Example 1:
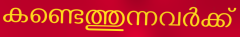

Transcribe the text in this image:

കണ്ടെത്തുന്നവർക്ക്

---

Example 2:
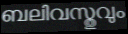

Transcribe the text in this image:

ബലിവസ്തുവും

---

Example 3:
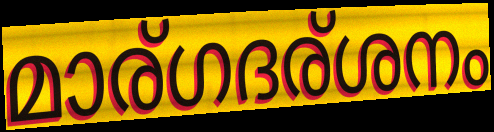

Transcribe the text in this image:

മാര്ഗദര്ശനം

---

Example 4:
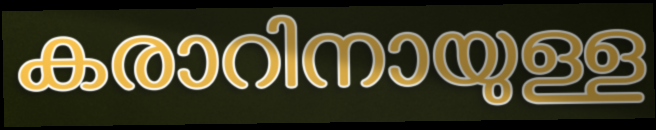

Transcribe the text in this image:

കരാറിനായുള്ള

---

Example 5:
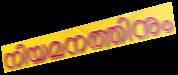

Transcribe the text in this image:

നിയമനത്തിനും